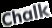
Chalk